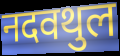
नदवथुल